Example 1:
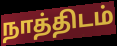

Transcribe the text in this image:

நாத்திடம்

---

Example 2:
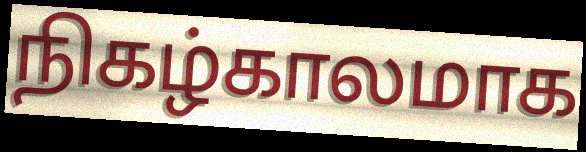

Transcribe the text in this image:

நிகழ்காலமாக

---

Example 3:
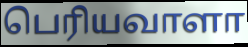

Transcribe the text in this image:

பெரியவாளா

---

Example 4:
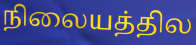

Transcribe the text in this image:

நிலையத்தில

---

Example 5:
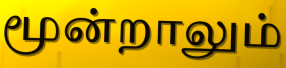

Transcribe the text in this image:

மூன்றாலும்